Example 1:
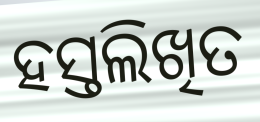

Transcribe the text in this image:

ହସ୍ତଲିଖିତ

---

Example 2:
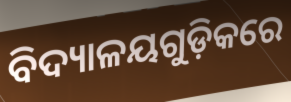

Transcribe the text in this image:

ବିଦ୍ୟାଳୟଗୁଡ଼ିକରେ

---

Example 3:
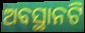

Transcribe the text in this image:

ଅବସ୍ଥାନଟି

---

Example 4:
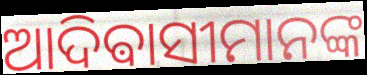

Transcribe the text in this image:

ଆଦିଵାସୀମାନଙ୍କ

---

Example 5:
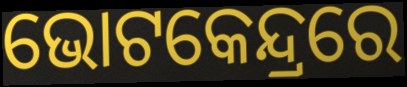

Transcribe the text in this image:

ଭୋଟକେନ୍ଦ୍ରରେ